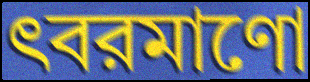
ৎবরমাণো